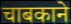
चाबकाने